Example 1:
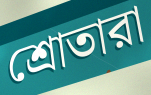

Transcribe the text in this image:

শ্রোতারা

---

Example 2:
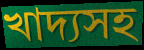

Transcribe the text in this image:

খাদ্যসহ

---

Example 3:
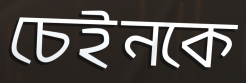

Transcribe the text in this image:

চেইনকে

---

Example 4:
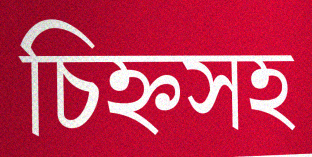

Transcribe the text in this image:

চিহ্নসহ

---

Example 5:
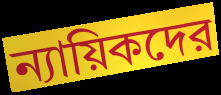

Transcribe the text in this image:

ন্যায়িকদের